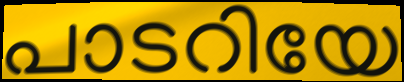
പാടറിയേ